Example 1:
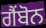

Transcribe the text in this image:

ਗੈਂਬੋਨ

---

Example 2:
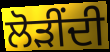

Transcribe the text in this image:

ਲੋੜੀਂਦੀ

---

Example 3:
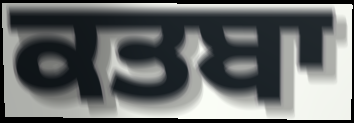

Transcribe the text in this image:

ਕਤਬਾ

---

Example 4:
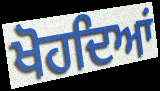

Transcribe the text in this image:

ਖੋਹਦਿਆਂ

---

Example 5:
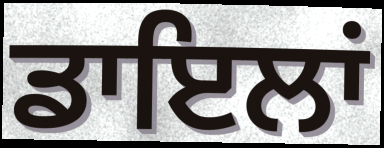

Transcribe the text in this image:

ਡਾਇਲਾਂ